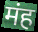
मंह